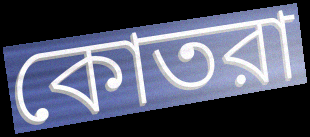
কোতরা